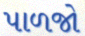
પાળજો